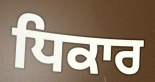
ਧਿਕਾਰ